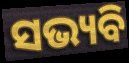
ସଭ୍ୟବି